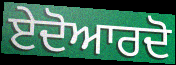
ਏਦੋਆਰਦੋ